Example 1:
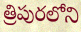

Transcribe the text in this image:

త్రిపురలోని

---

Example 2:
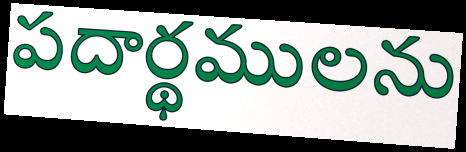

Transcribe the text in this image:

పదార్థములను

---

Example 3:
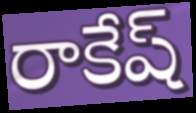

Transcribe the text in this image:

రాకేష్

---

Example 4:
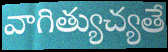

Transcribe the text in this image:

వాగిత్యుచ్యతే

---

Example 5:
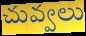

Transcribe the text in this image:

చువ్వలు